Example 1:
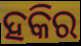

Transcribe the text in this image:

ହକିର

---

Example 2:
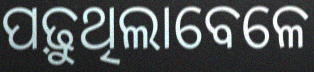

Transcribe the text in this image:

ପଢ଼ୁଥିଲାବେଳେ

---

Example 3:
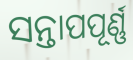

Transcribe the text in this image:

ସନ୍ତାପପୂର୍ଣ୍ଣ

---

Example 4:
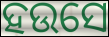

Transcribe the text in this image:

ହଉସେ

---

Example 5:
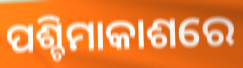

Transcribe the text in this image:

ପଶ୍ଚିମାକାଶରେ